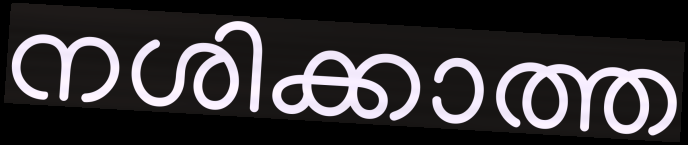
നശിക്കാത്ത